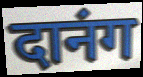
दानंग